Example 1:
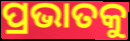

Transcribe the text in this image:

ପ୍ରଭାତକୁ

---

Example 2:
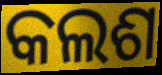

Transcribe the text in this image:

କଲଶ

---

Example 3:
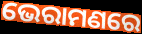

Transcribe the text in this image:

ଭେରାମଣରେ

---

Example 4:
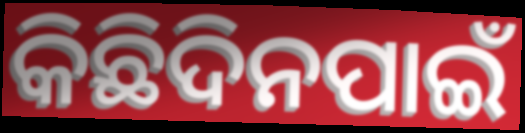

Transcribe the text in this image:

କିଛିଦିନପାଇଁ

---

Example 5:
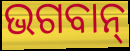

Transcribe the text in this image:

ଭଗବାନ୍